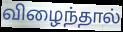
விழைந்தால்